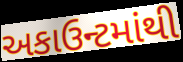
અકાઉન્ટમાંથી